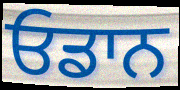
ਓਡਾਨ